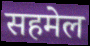
सहमेल